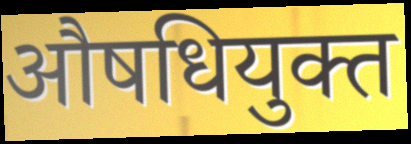
औषधियुक्त